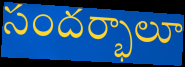
సందర్భాలూ